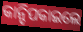
କାନ୍ଦିପକାଇଲେ